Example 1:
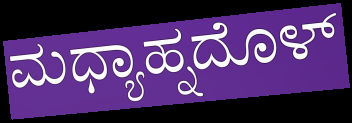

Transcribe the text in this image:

ಮಧ್ಯಾಹ್ನದೊಳ್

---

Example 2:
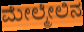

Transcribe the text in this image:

ಮೇಲ್ಮೇಲಿನ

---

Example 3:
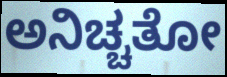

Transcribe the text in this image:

ಅನಿಚ್ಚತೋ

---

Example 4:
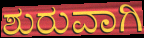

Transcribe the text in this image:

ಶುರುವಾಗಿ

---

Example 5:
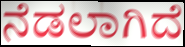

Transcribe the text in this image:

ನೆಡಲಾಗಿದೆ